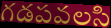
గడపవలసి